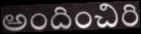
అందించిరి